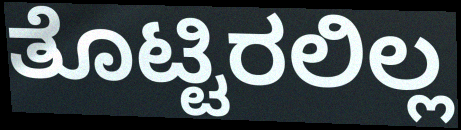
ತೊಟ್ಟಿರಲಿಲ್ಲ